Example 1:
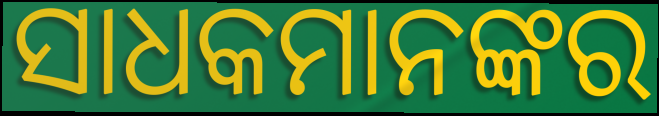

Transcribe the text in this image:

ସାଧକମାନଙ୍କର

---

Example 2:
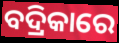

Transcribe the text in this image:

ବଦ୍ରିକାରେ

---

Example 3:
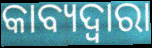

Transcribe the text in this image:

କାବ୍ୟଦ୍ୱାରା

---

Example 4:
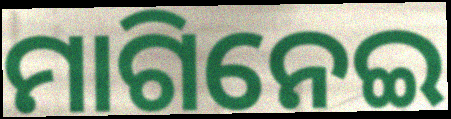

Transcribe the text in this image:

ମାଗିନେଇ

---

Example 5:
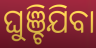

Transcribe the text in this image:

ଘୁଞ୍ଚିଯିବା